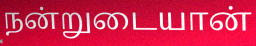
நன்றுடையான்